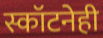
स्कॉटनेही